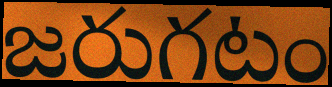
జరుగటం